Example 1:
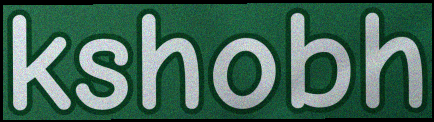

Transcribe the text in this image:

kshobh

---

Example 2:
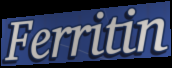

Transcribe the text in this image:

Ferritin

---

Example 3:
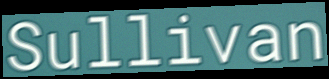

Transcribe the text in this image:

Sullivan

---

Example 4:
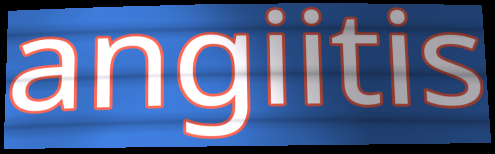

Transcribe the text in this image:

angiitis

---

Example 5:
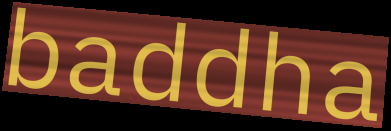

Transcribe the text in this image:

baddha